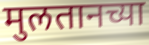
मुलतानच्या